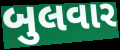
બુલવાર